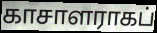
காசாளராகப்